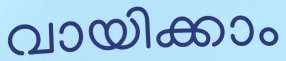
വായിക്കാം